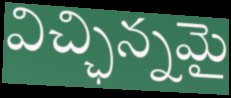
విచ్ఛిన్నమై